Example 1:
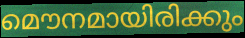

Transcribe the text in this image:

മൌനമായിരിക്കും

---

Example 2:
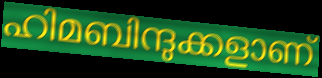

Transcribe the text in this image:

ഹിമബിന്ദുക്കളാണ്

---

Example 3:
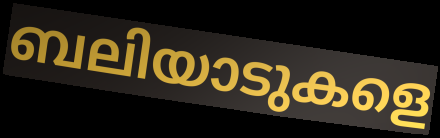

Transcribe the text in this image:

ബലിയാടുകളെ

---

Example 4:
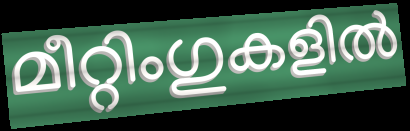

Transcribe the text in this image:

മീറ്റിംഗുകളിൽ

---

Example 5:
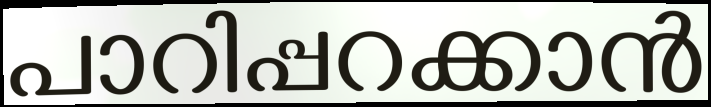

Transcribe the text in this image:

പാറിപ്പറക്കാൻ